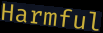
Harmful